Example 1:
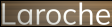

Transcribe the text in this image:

Laroche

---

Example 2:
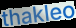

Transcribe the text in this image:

thakleo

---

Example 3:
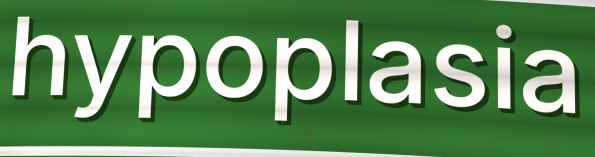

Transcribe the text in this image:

hypoplasia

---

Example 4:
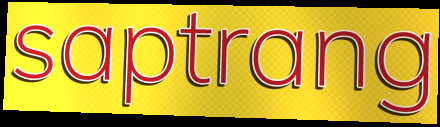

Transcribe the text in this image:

saptrang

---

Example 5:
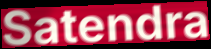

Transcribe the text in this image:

Satendra